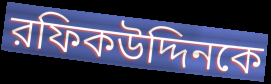
রফিকউদ্দিনকে